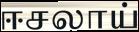
ஈசலாய்